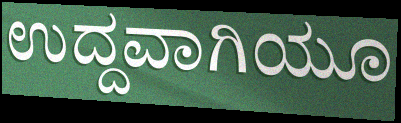
ಉದ್ದವಾಗಿಯೂ